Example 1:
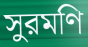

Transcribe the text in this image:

সুরমণি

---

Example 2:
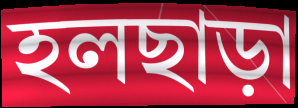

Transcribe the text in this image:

হলছাড়া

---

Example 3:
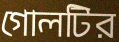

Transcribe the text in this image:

গোলটির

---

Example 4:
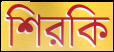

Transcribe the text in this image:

শিরকি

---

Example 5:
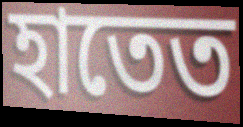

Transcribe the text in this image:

হাতেত